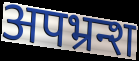
अपभ्रन्श